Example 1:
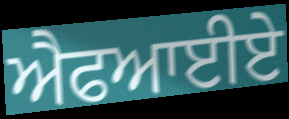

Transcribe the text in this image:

ਐਫਆਈਏ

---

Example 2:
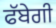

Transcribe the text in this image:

ਫੱਬੇਗੀ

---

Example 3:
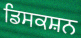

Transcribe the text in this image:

ਡਿਸਕਸ਼ਨ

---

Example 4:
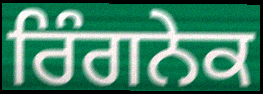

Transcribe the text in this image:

ਰਿੰਗਨੇਕ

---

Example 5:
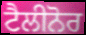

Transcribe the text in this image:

ਟੈਲੀਨੋਰ